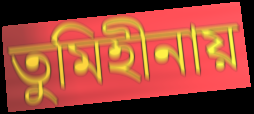
তুমিহীনায়